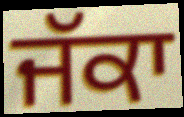
ਜੱਕਾ